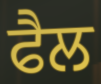
ਫੈਲ